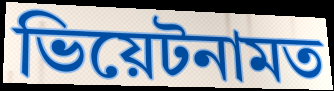
ভিয়েটনামত